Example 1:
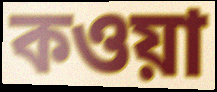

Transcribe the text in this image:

কওয়া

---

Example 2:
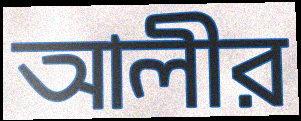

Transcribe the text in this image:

আলীর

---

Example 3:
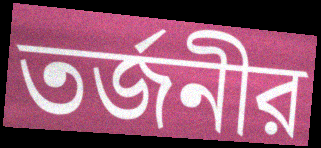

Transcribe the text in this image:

তর্জনীর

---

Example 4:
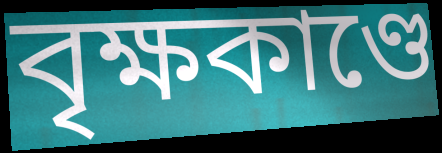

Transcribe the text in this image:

বৃক্ষকাণ্ডে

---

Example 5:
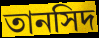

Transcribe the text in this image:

তানসিদ